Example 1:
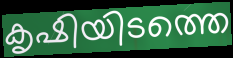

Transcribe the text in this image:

കൃഷിയിടത്തെ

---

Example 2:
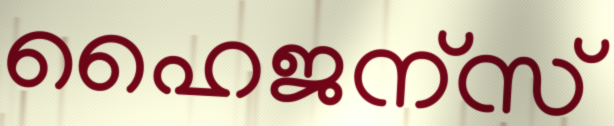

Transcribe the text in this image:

ഹൈജന്സ്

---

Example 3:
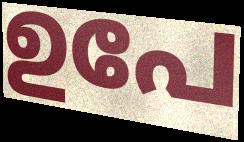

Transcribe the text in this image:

ഉപേ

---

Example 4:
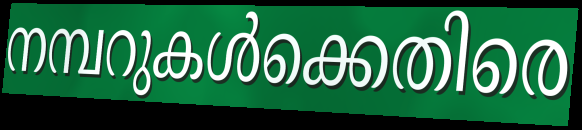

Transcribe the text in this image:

നമ്പറുകൾക്കെതിരെ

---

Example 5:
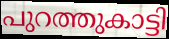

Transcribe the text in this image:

പുറത്തുകാട്ടി